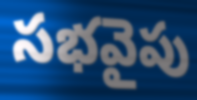
సభవైపు